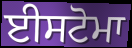
ਈਸਟੋਮਾ